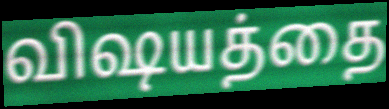
விஷயத்தை